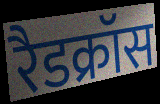
रैडक्रॉस